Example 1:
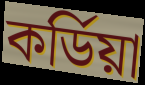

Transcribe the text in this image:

কর্ডিয়া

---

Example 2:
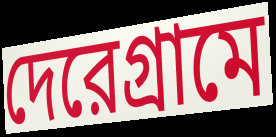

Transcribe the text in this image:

দেরেগ্রামে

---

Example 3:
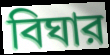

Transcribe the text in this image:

বিঘার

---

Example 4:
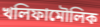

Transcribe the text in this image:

খলিফামৌলিক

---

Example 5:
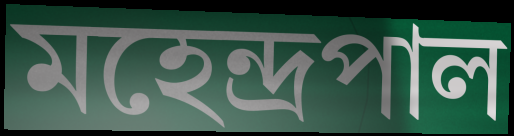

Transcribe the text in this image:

মহেন্দ্রপাল